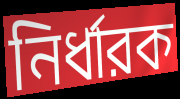
নির্ধারক